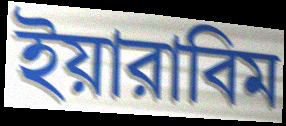
ইয়ারাবিম